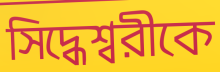
সিদ্ধেশ্বরীকে